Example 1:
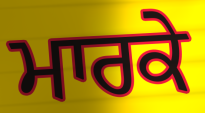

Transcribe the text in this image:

ਮਾਰਕੇ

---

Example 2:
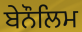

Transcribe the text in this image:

ਬੇਨੌਲਿਮ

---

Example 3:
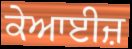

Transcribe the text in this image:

ਕੇਆਈਜ਼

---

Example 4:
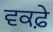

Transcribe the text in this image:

ਵਕਫ਼ੇ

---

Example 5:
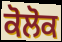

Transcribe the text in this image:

ਕੋਲੋਕ